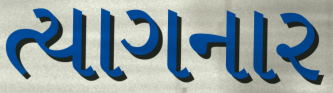
ત્યાગનાર